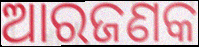
ଆରଜଣକ